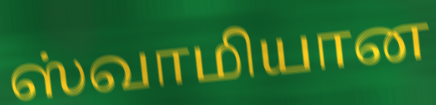
ஸ்வாமியான